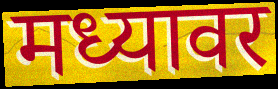
मध्यावर